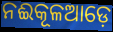
ନଈକୂଳଆଡ଼େ